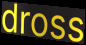
dross